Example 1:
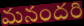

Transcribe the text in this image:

మనందరి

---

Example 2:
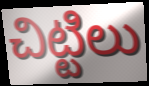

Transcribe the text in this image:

చిట్టిలు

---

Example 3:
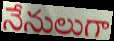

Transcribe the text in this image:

నేనులుగా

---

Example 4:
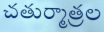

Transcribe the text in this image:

చతుర్మాత్రల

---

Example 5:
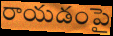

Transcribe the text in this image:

రాయడంపై